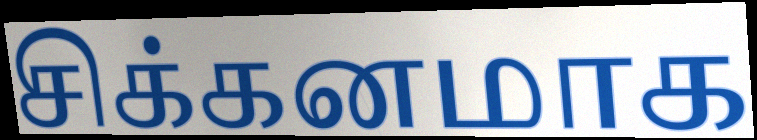
சிக்கனமாக